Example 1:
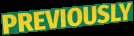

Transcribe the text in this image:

PREVIOUSLY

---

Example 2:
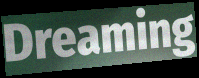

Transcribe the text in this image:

Dreaming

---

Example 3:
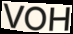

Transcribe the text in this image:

VOH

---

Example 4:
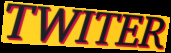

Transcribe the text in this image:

TWITER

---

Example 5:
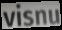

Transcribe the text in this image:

visnu